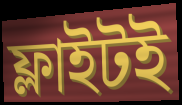
ফ্লাইটই